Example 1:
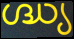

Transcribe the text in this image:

ഗ്ദ്ധ്യ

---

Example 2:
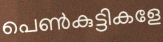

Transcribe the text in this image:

പെൺകുട്ടികളേ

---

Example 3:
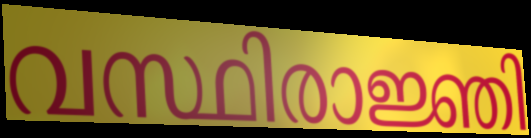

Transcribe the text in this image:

വസ്ഥിരാജ്ഞി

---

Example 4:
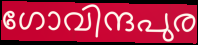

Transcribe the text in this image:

ഗോവിന്ദപുര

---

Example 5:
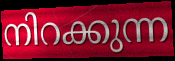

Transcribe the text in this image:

നിറക്കുന്ന